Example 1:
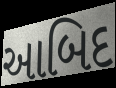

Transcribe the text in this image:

આબિદ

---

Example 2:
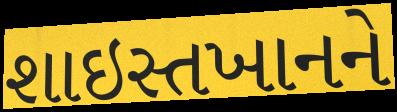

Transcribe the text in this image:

શાઇસ્તખાનને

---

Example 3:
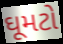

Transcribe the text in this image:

ઘૂમટો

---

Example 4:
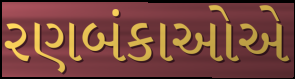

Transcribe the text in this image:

રણબંકાઓએ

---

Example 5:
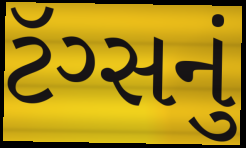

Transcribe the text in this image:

ટૅગ્સનું